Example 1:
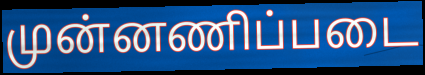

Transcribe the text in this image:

முன்னணிப்படை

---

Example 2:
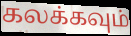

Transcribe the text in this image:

கலக்கவும்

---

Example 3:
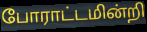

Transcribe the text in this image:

போராட்டமின்றி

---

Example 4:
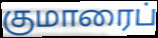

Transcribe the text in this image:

குமாரைப்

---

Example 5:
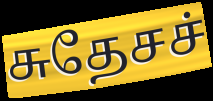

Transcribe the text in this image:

சுதேசச்